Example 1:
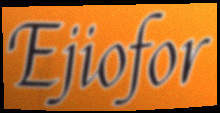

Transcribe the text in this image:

Ejiofor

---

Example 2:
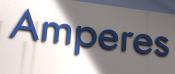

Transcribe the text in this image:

Amperes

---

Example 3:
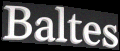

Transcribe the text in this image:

Baltes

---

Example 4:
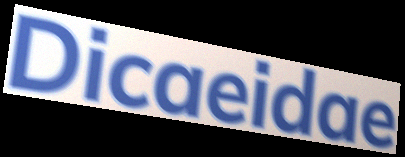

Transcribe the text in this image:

Dicaeidae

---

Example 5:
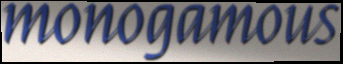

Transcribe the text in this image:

monogamous